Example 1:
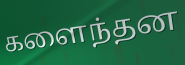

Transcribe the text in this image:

களைந்தன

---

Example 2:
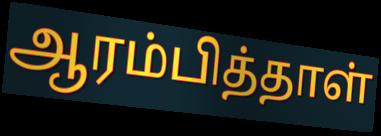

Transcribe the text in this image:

ஆரம்பித்தாள்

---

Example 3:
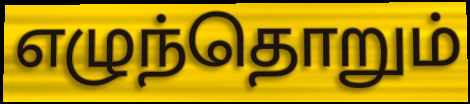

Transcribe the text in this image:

எழுந்தொறும்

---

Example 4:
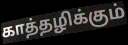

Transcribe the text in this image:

காத்தழிக்கும்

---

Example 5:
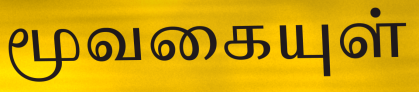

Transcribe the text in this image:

மூவகையுள்